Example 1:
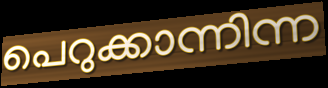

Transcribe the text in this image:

പെറുക്കാന്നിന്ന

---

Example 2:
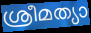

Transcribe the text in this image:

ശ്രീമത്യാ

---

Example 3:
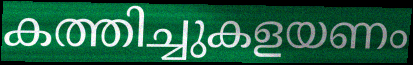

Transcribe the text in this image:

കത്തിച്ചുകളയണം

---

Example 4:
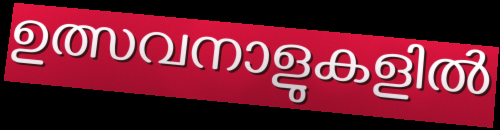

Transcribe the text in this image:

ഉത്സവനാളുകളിൽ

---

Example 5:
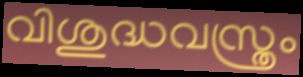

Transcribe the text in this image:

വിശുദ്ധവസ്ത്രം